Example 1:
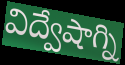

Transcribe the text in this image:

విద్వేషాగ్ని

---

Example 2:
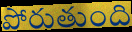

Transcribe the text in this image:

పోరుతుంది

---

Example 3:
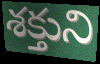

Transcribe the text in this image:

శక్తుని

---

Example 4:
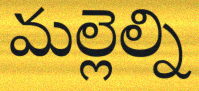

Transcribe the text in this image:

మల్లెల్ని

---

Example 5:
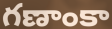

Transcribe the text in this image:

గణాంకా